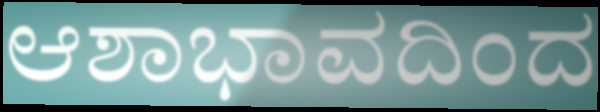
ಆಶಾಭಾವದಿಂದ